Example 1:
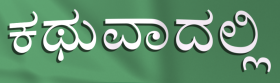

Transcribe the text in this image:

ಕಥುವಾದಲ್ಲಿ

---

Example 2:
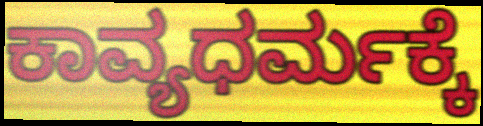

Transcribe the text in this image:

ಕಾವ್ಯಧರ್ಮಕ್ಕೆ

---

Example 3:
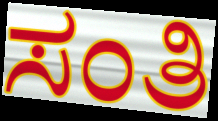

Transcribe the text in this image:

ಸಂತಿ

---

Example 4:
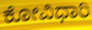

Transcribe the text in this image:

ಕೋವಿಧಾರಿ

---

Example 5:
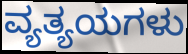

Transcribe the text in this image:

ವ್ಯತ್ಯಯಗಳು